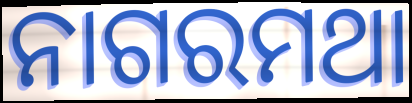
ନାଗରମଥା